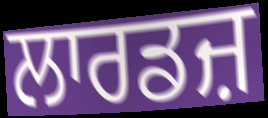
ਲਾਰਡਜ਼